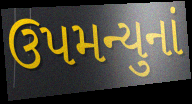
ઉપમન્યુનાં